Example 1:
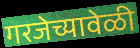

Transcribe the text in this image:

गरजेच्यावेळी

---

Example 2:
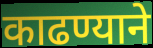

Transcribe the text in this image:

काढण्याने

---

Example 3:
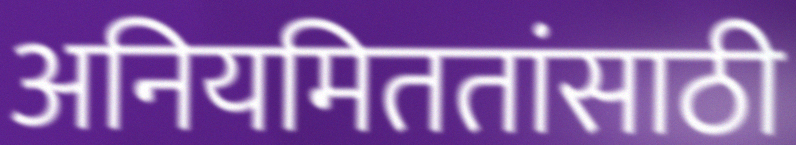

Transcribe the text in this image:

अनियमिततांसाठी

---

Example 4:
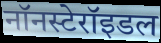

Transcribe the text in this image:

नॉनस्टेरॉइडल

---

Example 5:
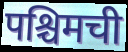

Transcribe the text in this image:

पश्चिमची